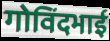
गोविंदभाई